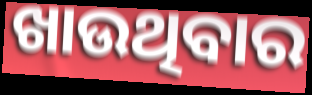
ଖାଉଥିବାର